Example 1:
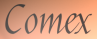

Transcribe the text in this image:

Comex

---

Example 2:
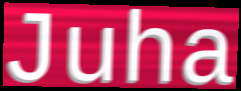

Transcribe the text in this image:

Juha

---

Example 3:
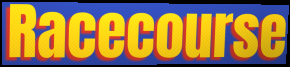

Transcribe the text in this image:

Racecourse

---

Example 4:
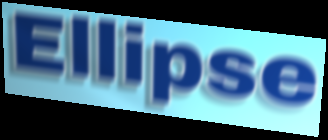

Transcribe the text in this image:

Ellipse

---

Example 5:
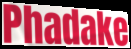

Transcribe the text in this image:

Phadake